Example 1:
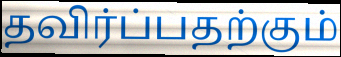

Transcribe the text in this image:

தவிர்ப்பதற்கும்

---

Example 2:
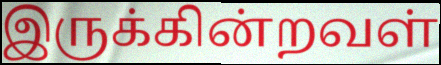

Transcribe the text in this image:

இருக்கின்றவள்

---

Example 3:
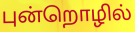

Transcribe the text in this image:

புன்றொழில்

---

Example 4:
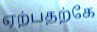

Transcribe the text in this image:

ஏற்பதற்கே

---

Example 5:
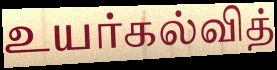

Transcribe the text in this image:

உயர்கல்வித்